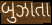
બુઝાતા